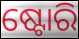
ଷ୍ଟୋରି